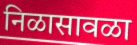
निळासावळा